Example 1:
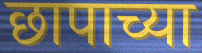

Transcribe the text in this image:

छापाच्या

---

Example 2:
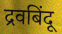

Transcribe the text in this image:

द्रवबिंदू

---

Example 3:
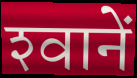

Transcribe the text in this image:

श्वानें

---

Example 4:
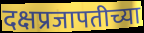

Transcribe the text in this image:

दक्षप्रजापतीच्या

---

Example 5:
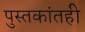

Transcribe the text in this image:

पुस्तकांतही